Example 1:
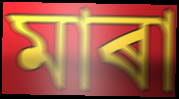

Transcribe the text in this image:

মাৰা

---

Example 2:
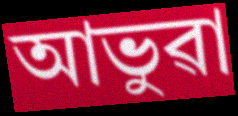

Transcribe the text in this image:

আভুৱা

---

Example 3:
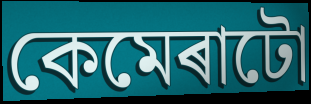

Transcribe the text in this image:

কেমেৰাটো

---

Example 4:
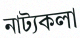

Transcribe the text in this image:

নাট্যকলা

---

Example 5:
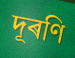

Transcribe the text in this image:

দূৰণি